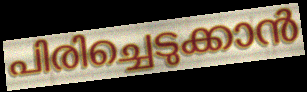
പിരിച്ചെടുക്കാൻ